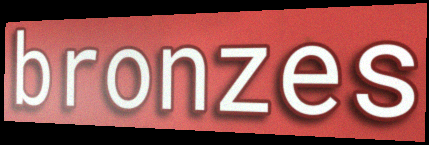
bronzes